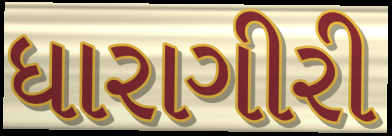
ધારાગીરી